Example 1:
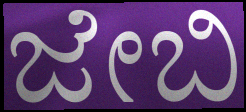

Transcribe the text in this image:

ಜೇಬಿ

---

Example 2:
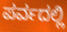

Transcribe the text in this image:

ಪರ್ವದಲ್ಲಿ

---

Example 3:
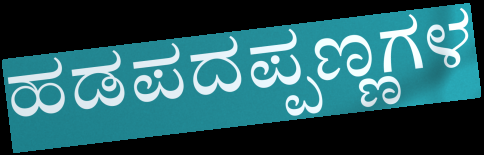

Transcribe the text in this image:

ಹಡಪದಪ್ಪಣ್ಣಗಳ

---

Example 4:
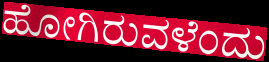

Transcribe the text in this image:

ಹೋಗಿರುವಳೆಂದು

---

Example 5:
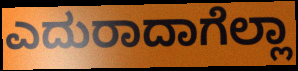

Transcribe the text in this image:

ಎದುರಾದಾಗೆಲ್ಲಾ